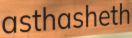
asthasheth